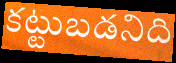
కట్టుబడనిది